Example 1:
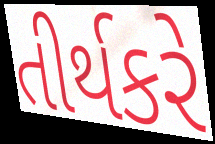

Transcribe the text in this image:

તીર્થકરે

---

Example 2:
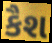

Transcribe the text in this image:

કૈશ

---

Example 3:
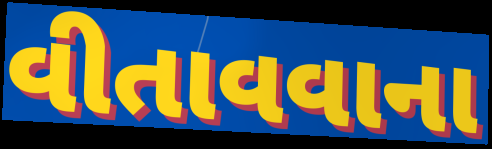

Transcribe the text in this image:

વીતાવવાના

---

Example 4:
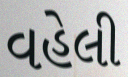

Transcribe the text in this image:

વહેલી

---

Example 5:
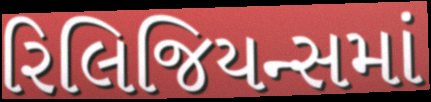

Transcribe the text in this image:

રિલિજિયન્સમાં